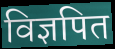
विज्ञपित